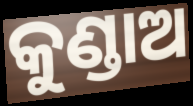
କୁଣ୍ଡାଅ